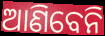
ଆଣିବେନି